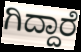
ಗಿದ್ದಾರೆ